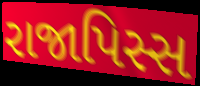
રાજાપિસ્સ